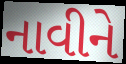
નાવીને